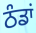
ਠੰਡਾਂ